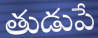
తుడుపే